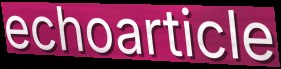
echoarticle